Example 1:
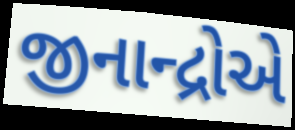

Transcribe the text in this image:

જીનાન્દ્રોએ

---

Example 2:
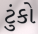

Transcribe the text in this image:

ટુંકો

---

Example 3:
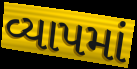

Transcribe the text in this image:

વ્યાપમાં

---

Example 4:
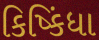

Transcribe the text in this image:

કિષ્કિંધા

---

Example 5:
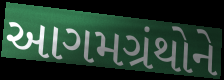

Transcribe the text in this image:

આગમગ્રંથોને